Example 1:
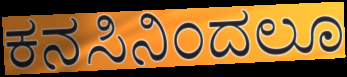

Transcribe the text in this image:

ಕನಸಿನಿಂದಲೂ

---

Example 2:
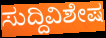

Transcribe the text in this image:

ಸುದ್ದಿವಿಶೇಷ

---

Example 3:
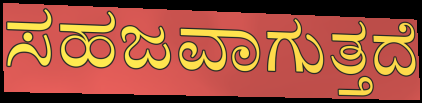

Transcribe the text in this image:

ಸಹಜವಾಗುತ್ತದೆ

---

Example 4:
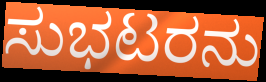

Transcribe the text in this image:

ಸುಭಟರನು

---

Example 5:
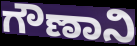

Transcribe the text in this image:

ಗೌಣಾನಿ